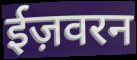
ईज़वरन